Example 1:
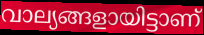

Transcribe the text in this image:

വാല്യങ്ങളായിട്ടാണ്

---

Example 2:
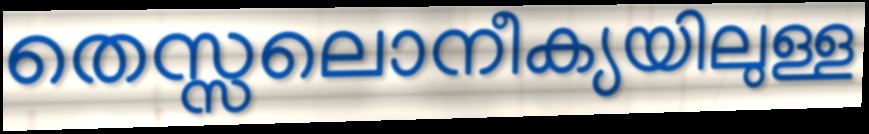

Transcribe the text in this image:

തെസ്സലൊനീക്യയിലുള്ള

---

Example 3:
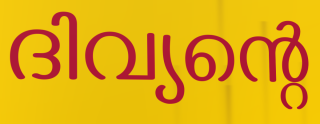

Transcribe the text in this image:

ദിവ്യന്റെ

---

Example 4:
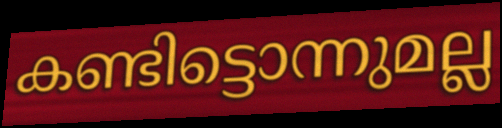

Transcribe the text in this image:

കണ്ടിട്ടൊന്നുമല്ല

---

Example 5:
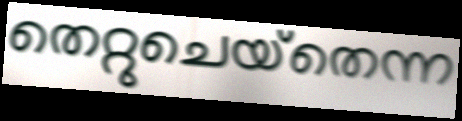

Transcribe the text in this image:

തെറ്റുചെയ്‌തെന്ന